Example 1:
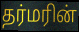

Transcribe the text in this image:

தர்மரின்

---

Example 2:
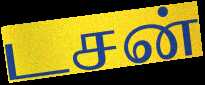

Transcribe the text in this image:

டசன்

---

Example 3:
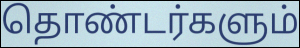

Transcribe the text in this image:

தொண்டர்களும்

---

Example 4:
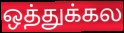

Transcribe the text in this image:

ஒத்துக்கல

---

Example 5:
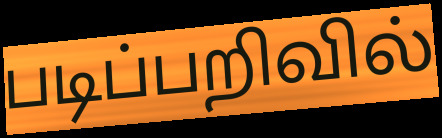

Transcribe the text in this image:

படிப்பறிவில்